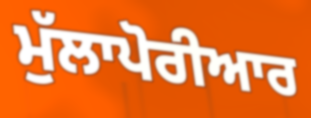
ਮੁੱਲਾਪੋਰੀਆਰ